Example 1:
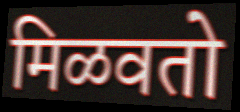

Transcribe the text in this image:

मिळवतो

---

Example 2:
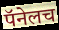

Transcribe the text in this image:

पॅनेलच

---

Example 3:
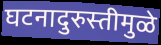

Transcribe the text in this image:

घटनादुरुस्तीमुळे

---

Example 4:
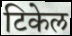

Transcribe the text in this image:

टिकेल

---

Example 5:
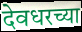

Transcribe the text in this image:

देवधरच्या